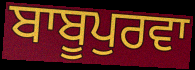
ਬਾਬੂਪੁਰਵਾ